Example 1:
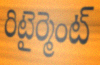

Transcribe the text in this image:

రిటైర్మెంట్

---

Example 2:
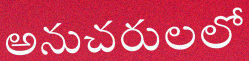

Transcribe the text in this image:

అనుచరులలో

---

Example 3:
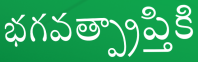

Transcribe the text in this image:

భగవత్ప్రాప్తికి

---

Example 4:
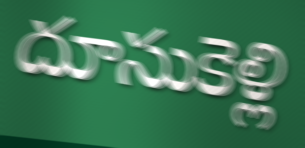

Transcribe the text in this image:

దూసుకెళ్లి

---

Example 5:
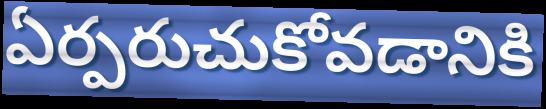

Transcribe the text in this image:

ఏర్పరుచుకోవడానికి